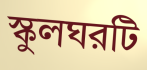
স্কুলঘরটি